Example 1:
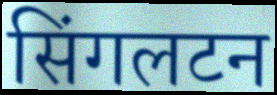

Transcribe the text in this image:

सिंगलटन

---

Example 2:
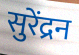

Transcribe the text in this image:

सुरेंद्रन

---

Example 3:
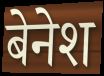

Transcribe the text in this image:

बेनेश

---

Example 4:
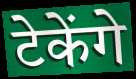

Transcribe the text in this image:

टेकेंगे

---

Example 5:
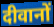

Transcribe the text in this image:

दीवानों